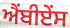
ਐਂਬੀਏਂਸ